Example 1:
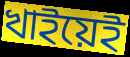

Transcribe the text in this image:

খাইয়েই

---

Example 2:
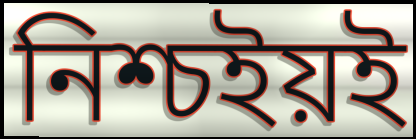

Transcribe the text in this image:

নিশ্চইয়ই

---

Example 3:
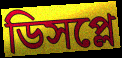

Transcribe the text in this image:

ডিসপ্লে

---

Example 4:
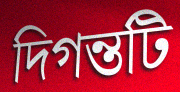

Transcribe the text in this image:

দিগন্তটি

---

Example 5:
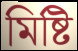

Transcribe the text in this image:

মিষ্টি